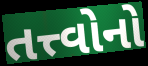
તત્ત્વોનો